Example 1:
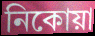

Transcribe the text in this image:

নিকোয়া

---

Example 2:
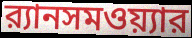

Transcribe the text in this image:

র‍্যানসমওয়্যার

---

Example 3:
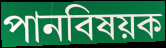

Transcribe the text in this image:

পানবিষয়ক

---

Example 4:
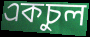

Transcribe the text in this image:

একচুল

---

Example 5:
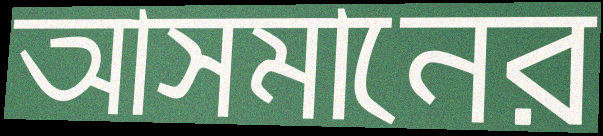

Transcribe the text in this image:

আসমানের